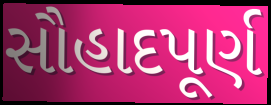
સૌહાદપૂર્ણ